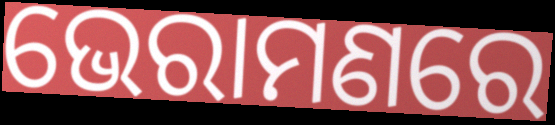
ଭେରାମଣରେ